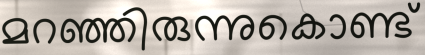
മറഞ്ഞിരുന്നുകൊണ്ട്